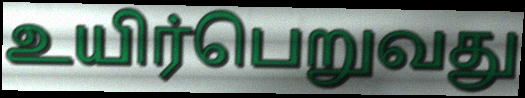
உயிர்பெறுவது